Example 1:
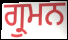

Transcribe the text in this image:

ਗ੍ਰੁਮਨ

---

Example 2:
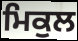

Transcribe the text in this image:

ਮਿਕੁਲ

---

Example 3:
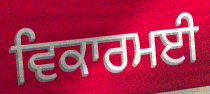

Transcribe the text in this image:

ਵਿਕਾਰਮਈ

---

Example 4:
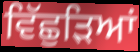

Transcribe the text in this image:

ਵਿੱਛੁੜਿਆਂ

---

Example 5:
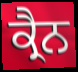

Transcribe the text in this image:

ਕ੍ਰੈਨ